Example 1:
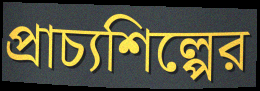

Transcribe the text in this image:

প্রাচ্যশিল্পের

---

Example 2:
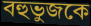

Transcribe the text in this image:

বহুভুজকে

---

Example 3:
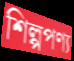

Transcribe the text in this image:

শিল্পপণ্য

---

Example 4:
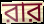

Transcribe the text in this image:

রার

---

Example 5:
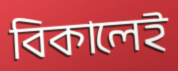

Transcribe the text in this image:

বিকালেই